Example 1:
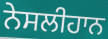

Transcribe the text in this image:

ਨੇਸਲੀਹਾਨ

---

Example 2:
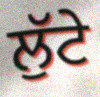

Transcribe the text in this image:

ਲੁੱਟੇ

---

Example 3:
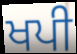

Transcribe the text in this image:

ਖਪੀ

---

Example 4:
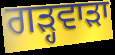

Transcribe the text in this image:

ਗੜ੍ਹਵਾੜਾ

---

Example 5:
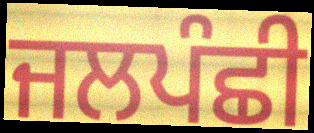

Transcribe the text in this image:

ਜਲਪੰਛੀ